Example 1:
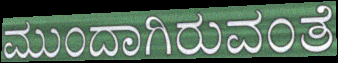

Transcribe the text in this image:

ಮುಂದಾಗಿರುವಂತೆ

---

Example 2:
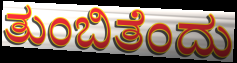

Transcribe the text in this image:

ತುಂಬಿತೆಂದು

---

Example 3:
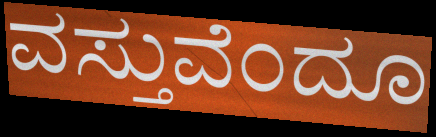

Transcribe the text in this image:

ವಸ್ತುವೆಂದೂ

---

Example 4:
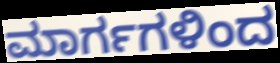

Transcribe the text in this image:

ಮಾರ್ಗಗಳಿಂದ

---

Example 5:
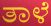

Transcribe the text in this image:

ತಾಳೆ